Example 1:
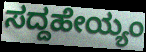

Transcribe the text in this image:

ಸದ್ದಹೇಯ್ಯಂ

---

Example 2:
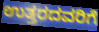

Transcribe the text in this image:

ಉತ್ತರದವರಿಗೆ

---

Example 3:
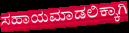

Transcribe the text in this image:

ಸಹಾಯಮಾಡಲಿಕ್ಕಾಗಿ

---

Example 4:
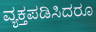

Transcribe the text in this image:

ವ್ಯಕ್ತಪಡಿಸಿದರೂ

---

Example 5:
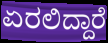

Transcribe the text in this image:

ಏರಲಿದ್ದಾರೆ